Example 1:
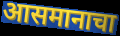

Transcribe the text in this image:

आसमानाचा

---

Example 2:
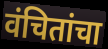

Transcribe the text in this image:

वंचितांचा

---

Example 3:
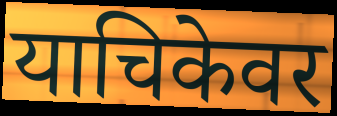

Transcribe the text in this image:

याचिकेवर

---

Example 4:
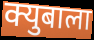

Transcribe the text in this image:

क्युबाला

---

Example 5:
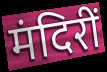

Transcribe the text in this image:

मंदिरीं